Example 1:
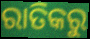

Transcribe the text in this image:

ରାତିକରୁ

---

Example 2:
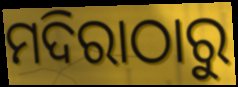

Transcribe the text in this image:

ମଦିରାଠାରୁ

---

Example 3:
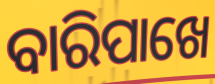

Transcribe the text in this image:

ବାରିପାଖେ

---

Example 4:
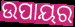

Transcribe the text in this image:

ଉପାୟର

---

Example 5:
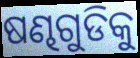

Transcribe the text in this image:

ଷଣ୍ଢଗୁଡିକୁ